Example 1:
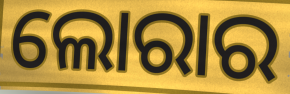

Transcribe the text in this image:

ଲୋରାର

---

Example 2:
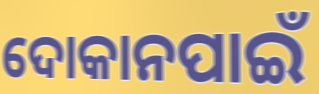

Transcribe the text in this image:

ଦୋକାନପାଇଁ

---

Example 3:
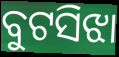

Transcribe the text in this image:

ବୁଟସିଝା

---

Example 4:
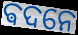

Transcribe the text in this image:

ଵଦନେ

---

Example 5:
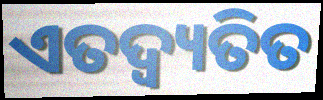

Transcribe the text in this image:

ଏତଦ୍ବ୍ୟତିତ